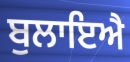
ਬੁਲਾਇਐ